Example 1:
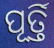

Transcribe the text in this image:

ପୂର୍ତ୍ତି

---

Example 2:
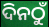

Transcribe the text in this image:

ଦିନଠୁଁ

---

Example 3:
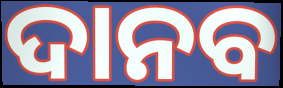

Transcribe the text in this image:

ଦାନବ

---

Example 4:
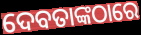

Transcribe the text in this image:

ଦେବତାଙ୍କଠାରେ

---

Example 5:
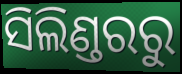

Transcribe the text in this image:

ସିଲିଣ୍ଡରରୁ